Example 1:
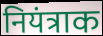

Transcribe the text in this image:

नियंत्राक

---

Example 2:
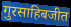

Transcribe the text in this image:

गुरसाहिबजीत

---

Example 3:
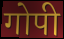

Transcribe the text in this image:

गोपी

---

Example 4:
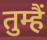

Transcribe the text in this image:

तुम्हैं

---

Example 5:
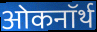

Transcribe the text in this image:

ओकनॉर्थ